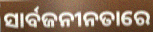
ସାର୍ବଜନୀନତାରେ